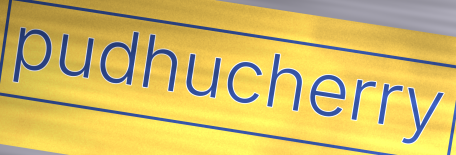
pudhucherry